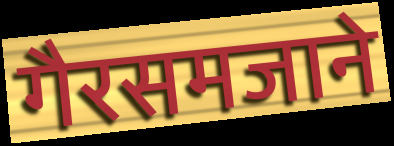
गैरसमजाने